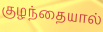
குழந்தையால்